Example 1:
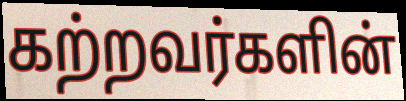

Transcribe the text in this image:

கற்றவர்களின்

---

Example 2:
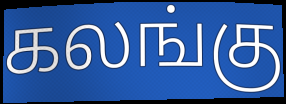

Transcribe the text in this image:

கலங்கு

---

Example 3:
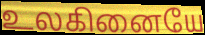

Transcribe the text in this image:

உலகினையே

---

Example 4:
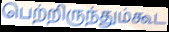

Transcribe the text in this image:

பெற்றிருந்தும்கூட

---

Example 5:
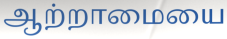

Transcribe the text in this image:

ஆற்றாமையை